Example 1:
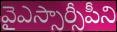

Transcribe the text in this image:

వైఎస్సార్సీపీని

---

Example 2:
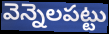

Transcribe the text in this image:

వెన్నెలపట్టు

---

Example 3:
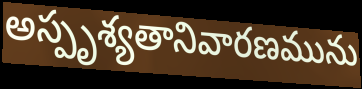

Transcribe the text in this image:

అస్పృశ్యతానివారణమును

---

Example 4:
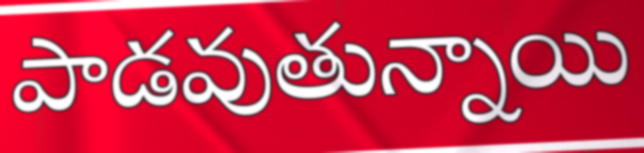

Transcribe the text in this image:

పాడవుతున్నాయి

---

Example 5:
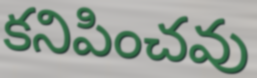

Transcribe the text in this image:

కనిపించవు